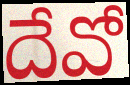
దేవో